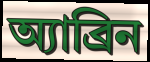
অ্যাব্রিন